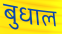
बुधाल